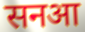
सनआ